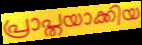
പ്രാപ്തയാക്കിയ